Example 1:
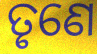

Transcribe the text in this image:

ତୃଣେ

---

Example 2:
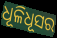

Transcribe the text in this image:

ଧୂଳିଧୂସର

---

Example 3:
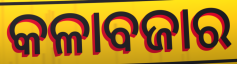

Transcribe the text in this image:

କଳାବଜାର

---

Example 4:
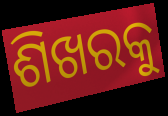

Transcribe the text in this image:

ଶିଖରକୁ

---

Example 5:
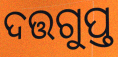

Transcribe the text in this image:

ଦତ୍ତଗୁପ୍ତ